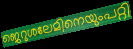
ജെറുശലേമിനെയുംപറ്റി